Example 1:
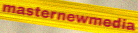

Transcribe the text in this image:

masternewmedia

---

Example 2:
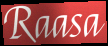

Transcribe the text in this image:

Raasa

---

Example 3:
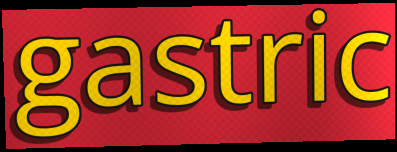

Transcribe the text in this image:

gastric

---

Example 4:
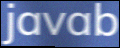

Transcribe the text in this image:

javab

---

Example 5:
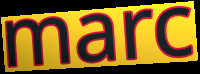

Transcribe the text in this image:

marc